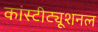
कांस्टीट्यूशनल